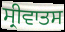
ਸ੍ਰੀਵਾਤਸ